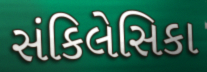
સંકિલેસિકા